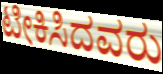
ಟೀಕಿಸಿದವರು